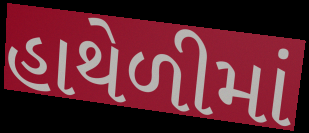
હાથેળીમાં